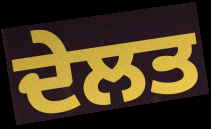
ਦੇਲਤ